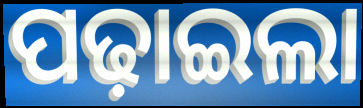
ପଢ଼ାଇଲା